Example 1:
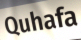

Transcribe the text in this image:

Quhafa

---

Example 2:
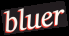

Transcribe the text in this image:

bluer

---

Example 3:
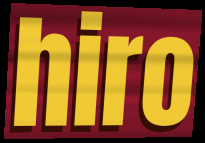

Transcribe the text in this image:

hiro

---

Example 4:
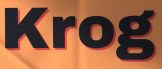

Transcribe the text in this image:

Krog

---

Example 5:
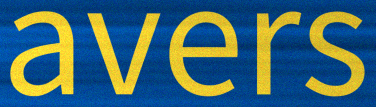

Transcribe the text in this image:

avers